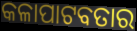
କଳାପାଟବତାର